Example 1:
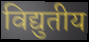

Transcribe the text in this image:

विद्युतीय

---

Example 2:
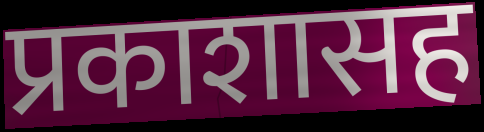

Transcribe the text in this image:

प्रकाशासह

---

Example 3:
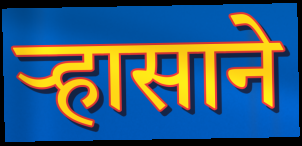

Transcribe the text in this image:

ऱ्हासाने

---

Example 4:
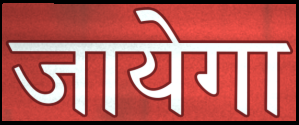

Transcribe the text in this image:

जायेगा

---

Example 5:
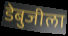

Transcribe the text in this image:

डेबुजीला